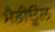
ਮੈਡੀਊਲ